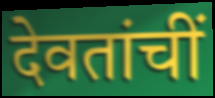
देवतांचीं